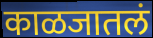
काळजातलं